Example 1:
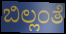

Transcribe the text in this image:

ಬಿಲ್ಲಂತೆ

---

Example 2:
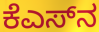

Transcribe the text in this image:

ಕೆಎಸ್‌ನ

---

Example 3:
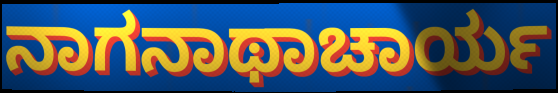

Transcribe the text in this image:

ನಾಗನಾಥಾಚಾರ್ಯ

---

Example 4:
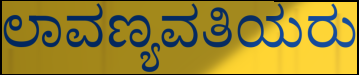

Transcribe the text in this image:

ಲಾವಣ್ಯವತಿಯರು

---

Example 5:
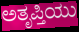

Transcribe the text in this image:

ಅತೃಪ್ತಿಯು